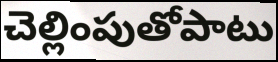
చెల్లింపుతోపాటు